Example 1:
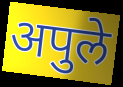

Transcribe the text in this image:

अपुले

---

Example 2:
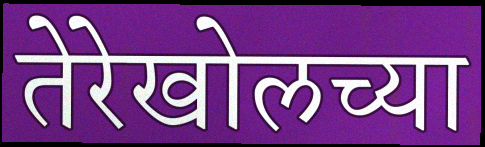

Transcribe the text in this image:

तेरेखोलच्या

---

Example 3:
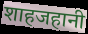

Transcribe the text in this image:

शाहजहानी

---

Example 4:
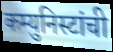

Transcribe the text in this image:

कम्युनिस्टांची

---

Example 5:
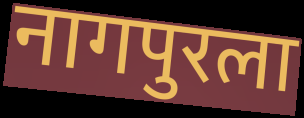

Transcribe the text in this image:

नागपुरला